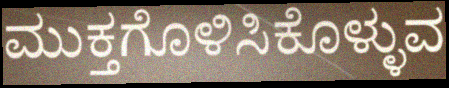
ಮುಕ್ತಗೊಳಿಸಿಕೊಳ್ಳುವ